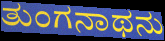
ತುಂಗನಾಥನು